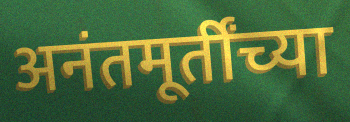
अनंतमूर्तींच्या